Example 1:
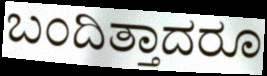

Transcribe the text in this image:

ಬಂದಿತ್ತಾದರೂ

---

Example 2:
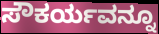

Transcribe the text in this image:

ಸೌಕರ್ಯವನ್ನೂ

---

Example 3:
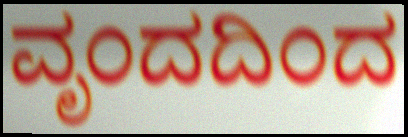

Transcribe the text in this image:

ವೃಂದದಿಂದ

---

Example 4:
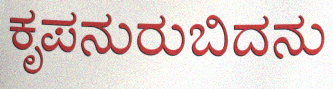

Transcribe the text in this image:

ಕೃಪನುರುಬಿದನು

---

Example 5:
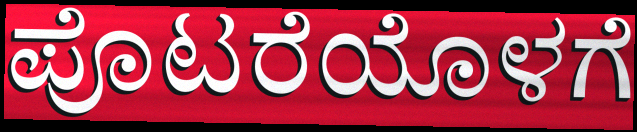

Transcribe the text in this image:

ಪೊಟರೆಯೊಳಗೆ